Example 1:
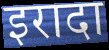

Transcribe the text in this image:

इरादा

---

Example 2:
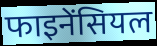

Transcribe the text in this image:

फाइनेंसियल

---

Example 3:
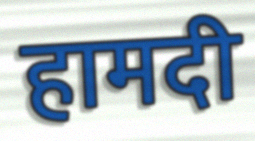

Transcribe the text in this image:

हामदी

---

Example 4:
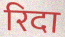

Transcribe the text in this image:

रिदा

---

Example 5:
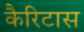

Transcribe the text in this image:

कैरिटास